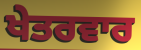
ਖੇਤਰਵਾਰ